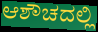
ಆಶೌಚದಲ್ಲಿ